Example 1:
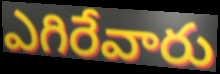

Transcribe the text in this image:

ఎగిరేవారు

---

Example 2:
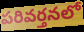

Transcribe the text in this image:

పరివర్తనలో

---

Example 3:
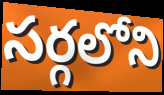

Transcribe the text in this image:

సర్గలోని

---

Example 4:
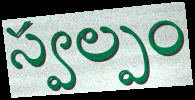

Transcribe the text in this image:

స్వల్పం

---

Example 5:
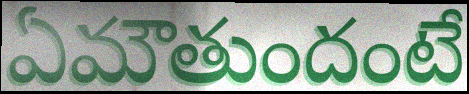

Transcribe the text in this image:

ఏమౌతుందంటే